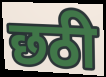
छठी